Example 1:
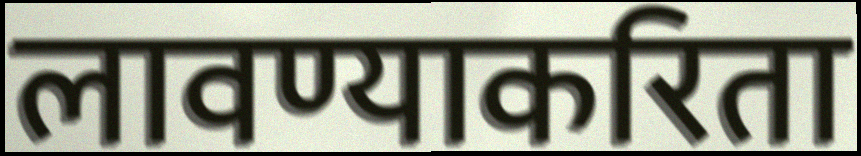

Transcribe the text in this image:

लावण्याकरिता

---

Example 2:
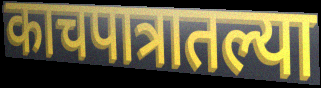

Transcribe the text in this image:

काचपात्रातल्या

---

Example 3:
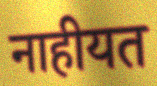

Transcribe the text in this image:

नाहीयत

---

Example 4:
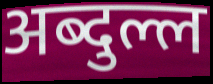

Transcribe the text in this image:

अब्दुल्ल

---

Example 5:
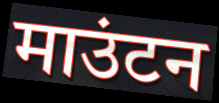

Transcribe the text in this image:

माउंटन